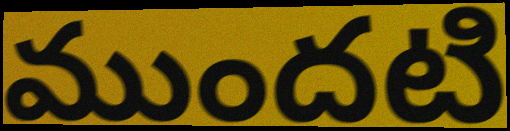
ముందటి